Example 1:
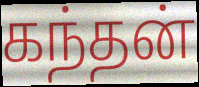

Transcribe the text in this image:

கந்தன்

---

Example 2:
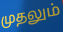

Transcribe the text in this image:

முதலும்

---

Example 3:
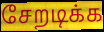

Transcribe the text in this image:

சேறடிக்க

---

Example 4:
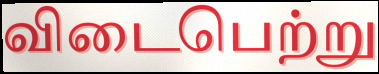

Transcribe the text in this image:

விடைபெற்று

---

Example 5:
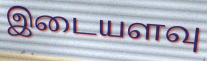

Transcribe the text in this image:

இடையளவு